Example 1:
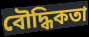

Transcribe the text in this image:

বৌদ্ধিকতা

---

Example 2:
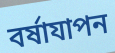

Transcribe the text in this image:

বর্ষাযাপন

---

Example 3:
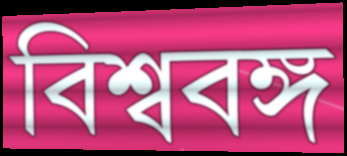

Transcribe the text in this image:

বিশ্ববঙ্গ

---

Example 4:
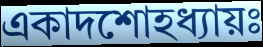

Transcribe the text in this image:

একাদশোহধ্যায়ঃ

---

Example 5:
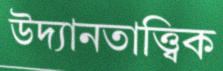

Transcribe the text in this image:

উদ্যানতাত্ত্বিক